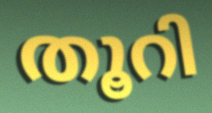
തൂറി